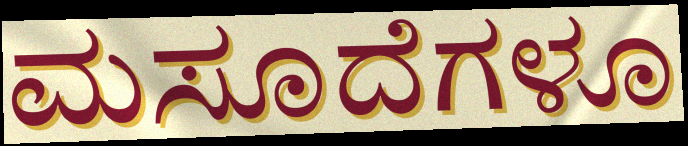
ಮಸೂದೆಗಳೂ